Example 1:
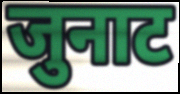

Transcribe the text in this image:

जुनाट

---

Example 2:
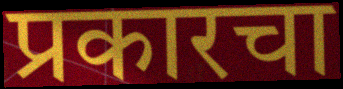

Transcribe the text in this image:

प्रकारचा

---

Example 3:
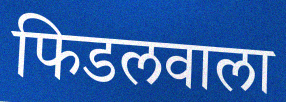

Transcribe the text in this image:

फिडलवाला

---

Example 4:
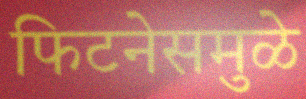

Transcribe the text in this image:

फिटनेसमुळे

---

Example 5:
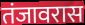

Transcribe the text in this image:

तंजावरास